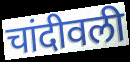
चांदीवली